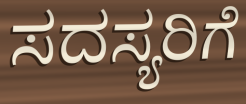
ಸದಸ್ಯರಿಗೆ